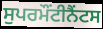
ਸੁਪਰਮੌਂਟੀਨੈਂਟਸ